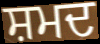
ਸ਼ਮਦ